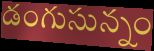
డంగుసున్నం